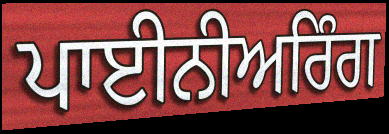
ਪਾਈਨੀਅਰਿੰਗ